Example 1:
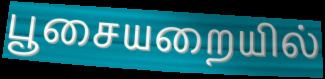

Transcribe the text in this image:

பூசையறையில்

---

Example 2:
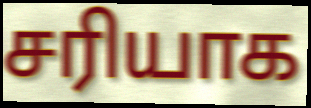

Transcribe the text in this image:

சரியாக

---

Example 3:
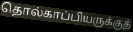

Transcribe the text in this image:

தொல்காப்பியருக்குத்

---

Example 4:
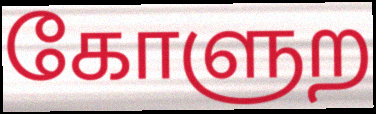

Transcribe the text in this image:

கோளுற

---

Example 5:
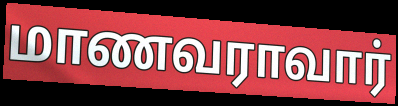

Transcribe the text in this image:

மாணவராவார்